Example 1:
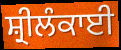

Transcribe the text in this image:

ਸ਼੍ਰੀਲੰਕਾਈ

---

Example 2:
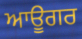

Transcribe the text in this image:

ਆਊਗਰ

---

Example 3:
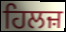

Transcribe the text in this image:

ਹਿਲਜ਼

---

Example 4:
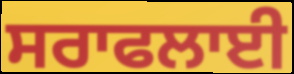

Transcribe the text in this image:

ਸਰਾਫਲਾਈ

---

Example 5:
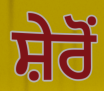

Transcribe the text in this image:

ਸ਼ੇਰੋਂ